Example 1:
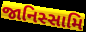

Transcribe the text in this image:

જાનિસ્સામિ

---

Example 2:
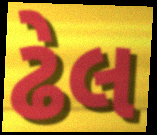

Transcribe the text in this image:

ઢેલ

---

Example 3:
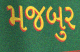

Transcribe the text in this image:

મજબુર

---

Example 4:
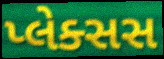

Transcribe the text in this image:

પ્લેક્સસ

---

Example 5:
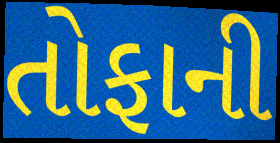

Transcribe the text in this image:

તોફાની